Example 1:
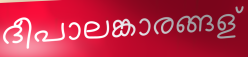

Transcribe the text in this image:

ദീപാലങ്കാരങ്ങള്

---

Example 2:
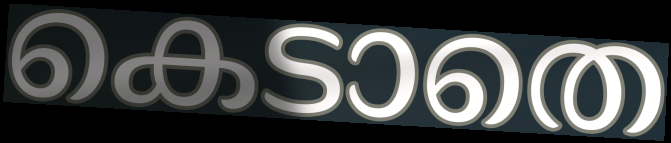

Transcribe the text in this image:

കെടാതെ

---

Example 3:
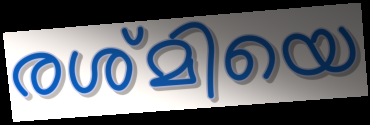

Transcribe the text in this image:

രശ്മിയെ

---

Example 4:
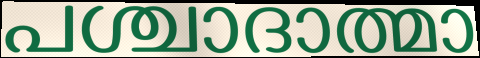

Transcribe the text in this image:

പശ്ചാദാത്മാ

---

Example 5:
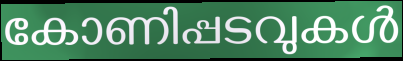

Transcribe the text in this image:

കോണിപ്പടവുകൾ